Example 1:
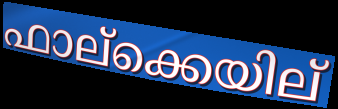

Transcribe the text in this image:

ഫാല്ക്കെയില്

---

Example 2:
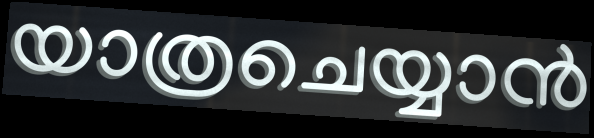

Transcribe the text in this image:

യാത്രചെയ്യാൻ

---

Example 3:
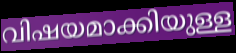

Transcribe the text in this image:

വിഷയമാക്കിയുള്ള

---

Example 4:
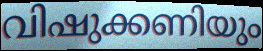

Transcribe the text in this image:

വിഷുക്കണിയും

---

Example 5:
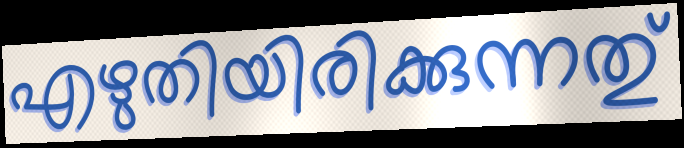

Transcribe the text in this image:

എഴുതിയിരിക്കുന്നതു്